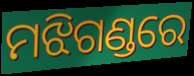
ମଝିଗଣ୍ଡରେ